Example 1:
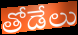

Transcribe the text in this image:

తోడేలు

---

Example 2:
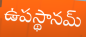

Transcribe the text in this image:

ఉపస్థానమ్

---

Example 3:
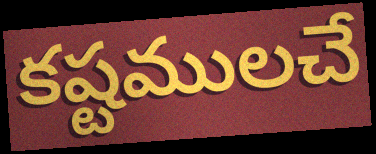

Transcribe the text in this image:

కష్టములచే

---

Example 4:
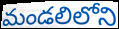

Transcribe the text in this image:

మండలిలోని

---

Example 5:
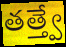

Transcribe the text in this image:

తత్త్వే